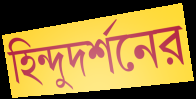
হিন্দুদর্শনের